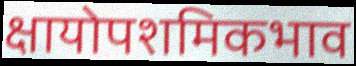
क्षायोपशमिकभाव